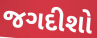
જગદીશો